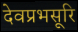
देवप्रभसूरि